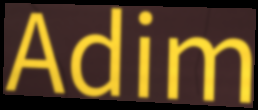
Adim